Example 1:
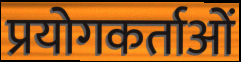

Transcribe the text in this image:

प्रयोगकर्ताओं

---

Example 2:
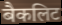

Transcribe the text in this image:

बैकलिट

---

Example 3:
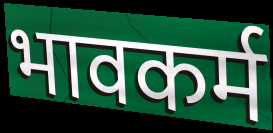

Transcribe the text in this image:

भावकर्म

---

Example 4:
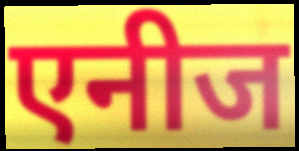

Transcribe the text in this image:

एनीज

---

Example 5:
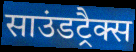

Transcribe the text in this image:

साउंडट्रैक्स